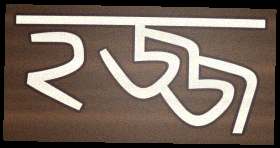
হজ্জ